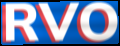
RVO